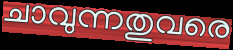
ചാവുന്നതുവരെ